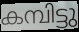
കമ്പിട്ടു